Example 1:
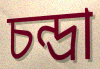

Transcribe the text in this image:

চন্দ্রা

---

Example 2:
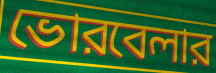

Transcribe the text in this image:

ভোরবেলার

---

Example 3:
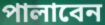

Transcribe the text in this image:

পালাবেন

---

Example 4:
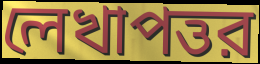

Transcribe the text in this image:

লেখাপত্তর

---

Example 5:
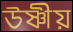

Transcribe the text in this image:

উষ্ণীয়